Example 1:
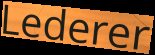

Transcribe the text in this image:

Lederer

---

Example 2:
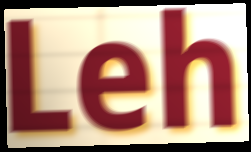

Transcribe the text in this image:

Leh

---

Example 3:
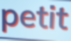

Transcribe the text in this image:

petit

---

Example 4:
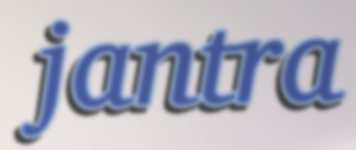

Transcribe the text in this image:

jantra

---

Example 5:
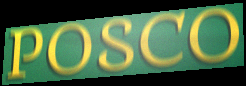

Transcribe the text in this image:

POSCO